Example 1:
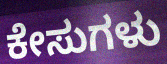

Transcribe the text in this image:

ಕೇಸುಗಳು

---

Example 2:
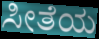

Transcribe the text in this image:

ಸೀತೆಯ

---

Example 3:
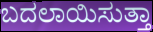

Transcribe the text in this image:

ಬದಲಾಯಿಸುತ್ತಾ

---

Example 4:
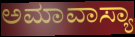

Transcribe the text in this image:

ಅಮಾವಾಸ್ಯಾ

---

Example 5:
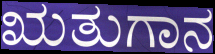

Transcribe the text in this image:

ಋತುಗಾನ